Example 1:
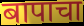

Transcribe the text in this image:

बापाचा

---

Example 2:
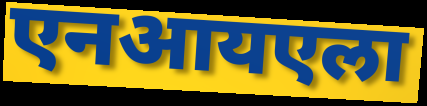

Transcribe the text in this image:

एनआयएला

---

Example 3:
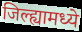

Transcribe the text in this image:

जिल्ह्यामध्ये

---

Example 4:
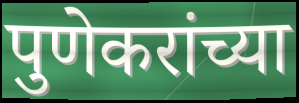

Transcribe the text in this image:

पुणेकरांच्या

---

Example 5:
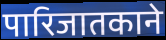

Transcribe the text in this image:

पारिजातकाने